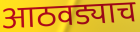
आठवड्याच